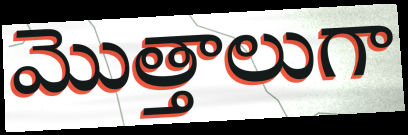
మొత్తాలుగా